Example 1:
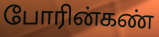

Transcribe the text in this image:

போரின்கண்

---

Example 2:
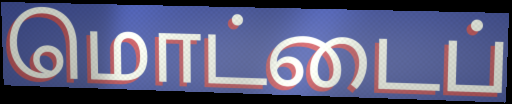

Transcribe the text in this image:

மொட்டைப்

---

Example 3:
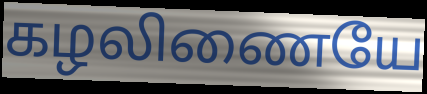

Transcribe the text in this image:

கழலிணையே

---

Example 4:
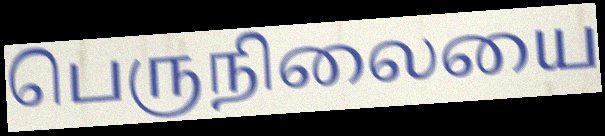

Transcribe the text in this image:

பெருநிலையை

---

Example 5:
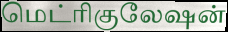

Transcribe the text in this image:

மெட்ரிகுலேஷன்